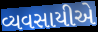
વ્યવસાયીએ